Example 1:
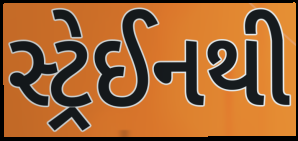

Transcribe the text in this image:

સ્ટ્રેઈનથી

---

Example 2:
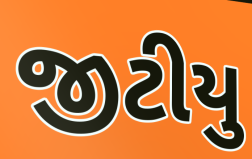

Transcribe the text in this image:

જીટીયુ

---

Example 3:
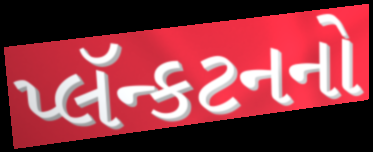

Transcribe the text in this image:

પ્લૅન્કટનનો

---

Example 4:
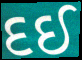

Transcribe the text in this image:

દઈ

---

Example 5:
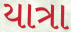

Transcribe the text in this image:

યાત્રા